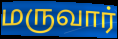
மருவார்